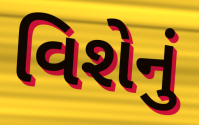
વિશેનું